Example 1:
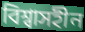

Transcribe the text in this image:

বিশ্বাসহীন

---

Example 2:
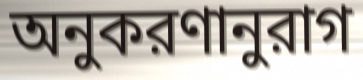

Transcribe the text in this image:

অনুকরণানুরাগ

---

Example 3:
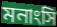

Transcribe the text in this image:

মনাংসি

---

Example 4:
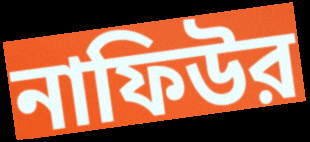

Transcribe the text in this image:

নাফিউর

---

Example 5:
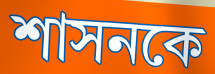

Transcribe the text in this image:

শাসনকে